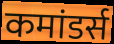
कमांडर्स